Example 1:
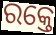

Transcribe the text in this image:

ରକ୍ତେ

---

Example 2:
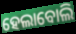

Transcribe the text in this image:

ହେଲାବୋଲି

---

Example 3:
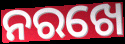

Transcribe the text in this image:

ନରଖେ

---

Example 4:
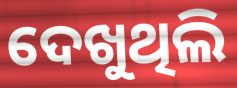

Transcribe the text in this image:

ଦେଖୁଥିଲି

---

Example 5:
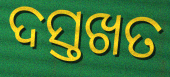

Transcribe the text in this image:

ଦସ୍ତଖତ